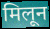
मिलून